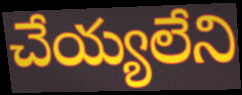
చేయ్యలేని